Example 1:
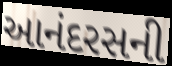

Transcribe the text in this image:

આનંદરસની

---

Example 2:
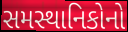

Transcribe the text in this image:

સમસ્થાનિકોનો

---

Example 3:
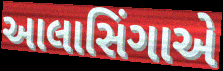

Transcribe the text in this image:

આલાસિંગાએ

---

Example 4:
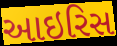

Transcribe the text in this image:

આઇરિસ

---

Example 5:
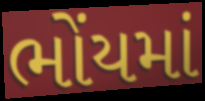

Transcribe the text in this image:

ભોંયમાં